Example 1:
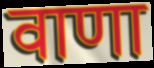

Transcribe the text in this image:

वाणा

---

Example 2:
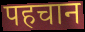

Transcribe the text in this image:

पहचान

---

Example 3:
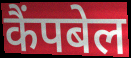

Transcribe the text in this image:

कैंपबेल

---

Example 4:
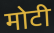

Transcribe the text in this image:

मोटी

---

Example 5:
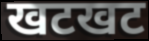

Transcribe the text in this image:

खटखट